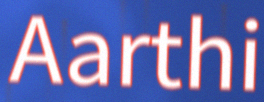
Aarthi